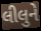
લીલુને